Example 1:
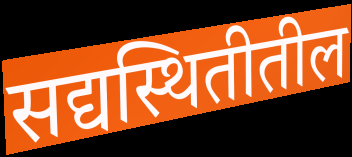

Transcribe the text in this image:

सद्यस्थितीतील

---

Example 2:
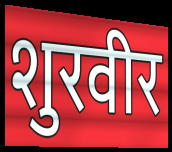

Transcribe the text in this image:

शुरवीर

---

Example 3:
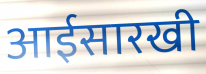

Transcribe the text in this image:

आईसारखी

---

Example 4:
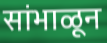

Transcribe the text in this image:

सांभाळून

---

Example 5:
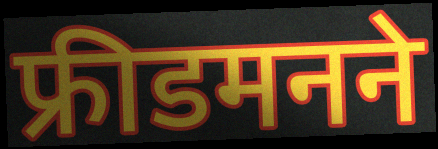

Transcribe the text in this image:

फ्रीडमनने